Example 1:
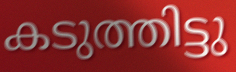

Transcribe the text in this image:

കടുത്തിട്ടു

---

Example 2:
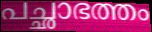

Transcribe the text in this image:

പച്ഛാഭത്തം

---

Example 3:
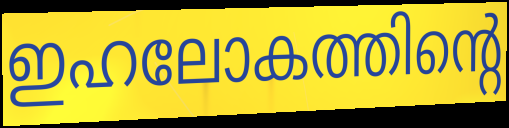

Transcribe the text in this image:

ഇഹലോകത്തിന്റെ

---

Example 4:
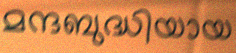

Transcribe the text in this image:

മന്ദബുദ്ധിയായ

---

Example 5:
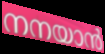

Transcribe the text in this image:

നനയാൻ